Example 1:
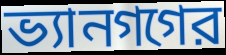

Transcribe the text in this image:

ভ্যানগগের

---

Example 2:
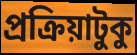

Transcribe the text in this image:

প্রক্রিয়াটুকু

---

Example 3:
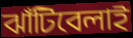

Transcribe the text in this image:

ঝাঁটিবেলাই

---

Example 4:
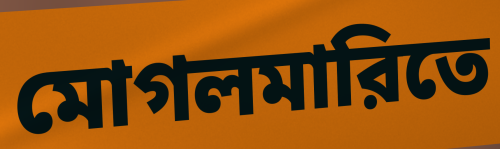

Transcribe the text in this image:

মোগলমারিতে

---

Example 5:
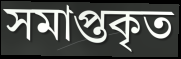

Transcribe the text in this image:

সমাপ্তকৃত